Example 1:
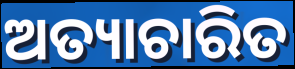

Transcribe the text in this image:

ଅତ୍ୟାଚାରିତ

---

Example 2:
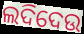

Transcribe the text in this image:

ଲଦିଦେଉ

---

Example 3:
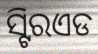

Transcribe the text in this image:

ସ୍ଟିରଏଡ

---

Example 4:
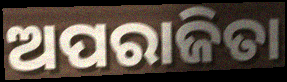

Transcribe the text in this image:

ଅପରାଜିତା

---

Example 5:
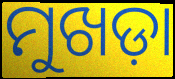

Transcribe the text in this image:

ମୁଖଡ଼ା